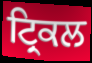
ਟ੍ਰਿਕਲ